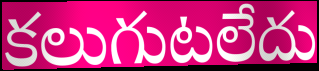
కలుగుటలేదు